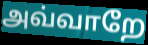
அவ்வாறே